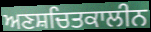
ਅਣਸ਼ਚਿਤਕਾਲੀਨ